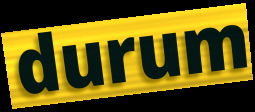
durum